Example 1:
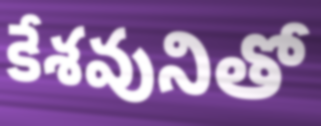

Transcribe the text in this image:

కేశవునితో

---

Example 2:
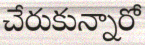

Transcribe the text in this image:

చేరుకున్నారో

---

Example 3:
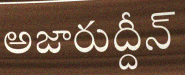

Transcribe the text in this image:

అజారుద్దీన్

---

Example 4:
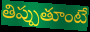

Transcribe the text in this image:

తిప్పుతూంటే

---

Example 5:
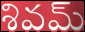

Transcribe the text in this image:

శివమ్